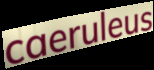
caeruleus